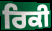
ਰਿਕੀ